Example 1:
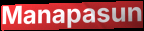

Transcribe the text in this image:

Manapasun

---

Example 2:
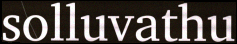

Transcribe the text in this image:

solluvathu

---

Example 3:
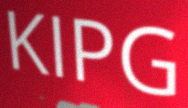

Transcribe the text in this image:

KIPG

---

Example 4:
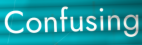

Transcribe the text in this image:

Confusing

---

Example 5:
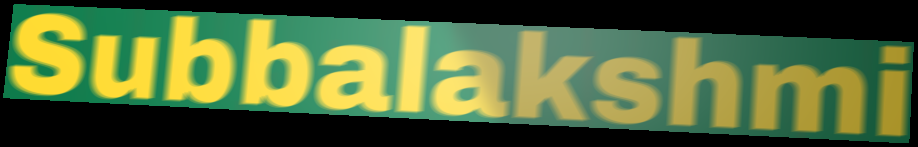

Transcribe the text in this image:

Subbalakshmi